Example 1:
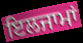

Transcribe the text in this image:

ਇਲਜਾਮਾਂ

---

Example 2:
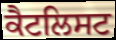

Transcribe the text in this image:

ਕੈਟਲਿਸਟ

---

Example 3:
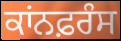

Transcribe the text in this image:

ਕਾਂਨਫ਼ਰੰਸ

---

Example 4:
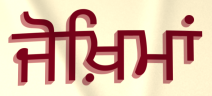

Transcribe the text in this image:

ਜੋਖ਼ਿਮਾਂ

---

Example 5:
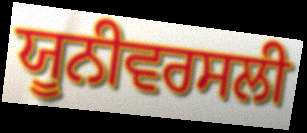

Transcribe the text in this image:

ਯੂਨੀਵਰਸਲੀ